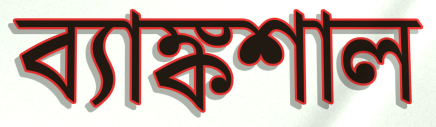
ব্যাঙ্কশাল